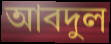
আবদুল